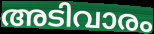
അടിവാരം